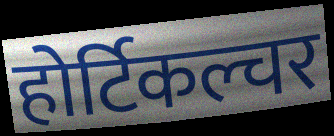
होर्टिकल्चर